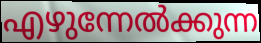
എഴുന്നേൽക്കുന്ന